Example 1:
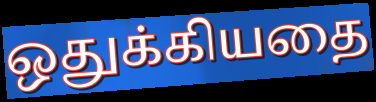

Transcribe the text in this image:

ஒதுக்கியதை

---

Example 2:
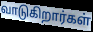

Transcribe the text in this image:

வாடுகிறார்கள்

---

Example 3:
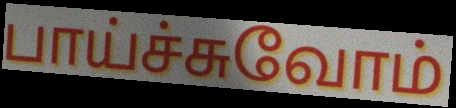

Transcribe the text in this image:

பாய்ச்சுவோம்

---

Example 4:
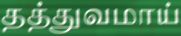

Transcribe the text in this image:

தத்துவமாய்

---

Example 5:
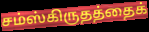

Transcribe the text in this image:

சம்ஸ்கிருதத்தைக்